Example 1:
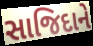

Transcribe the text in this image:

સાજિદાને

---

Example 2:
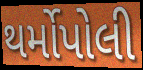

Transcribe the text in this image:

થર્મોપોલી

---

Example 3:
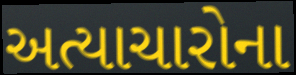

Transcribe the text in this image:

અત્યાચારોના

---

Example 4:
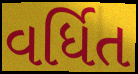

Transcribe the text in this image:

વર્ધિત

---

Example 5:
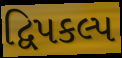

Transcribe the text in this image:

દ્વિપકલ્પ